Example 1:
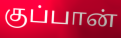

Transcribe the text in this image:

குப்பான்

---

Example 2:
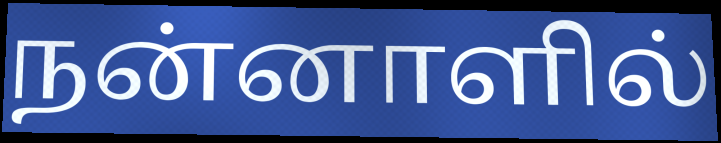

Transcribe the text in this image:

நன்னாளில்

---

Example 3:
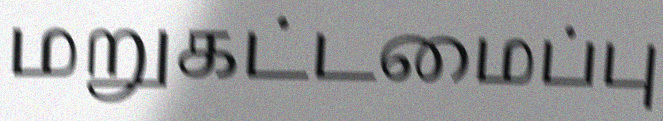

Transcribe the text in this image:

மறுகட்டமைப்பு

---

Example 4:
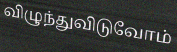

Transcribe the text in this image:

விழுந்துவிடுவோம்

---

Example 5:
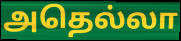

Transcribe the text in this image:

அதெல்லா